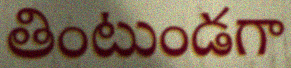
తింటుండగా